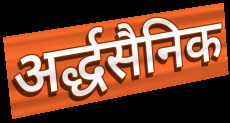
अर्द्धसैनिक